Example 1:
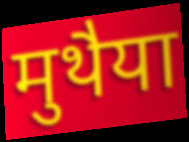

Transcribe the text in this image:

मुथैया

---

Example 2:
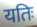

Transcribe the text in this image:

यतिः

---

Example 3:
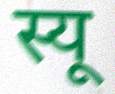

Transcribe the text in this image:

स्यू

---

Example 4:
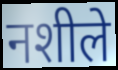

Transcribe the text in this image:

नशीले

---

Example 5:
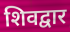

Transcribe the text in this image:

शिवद्वार